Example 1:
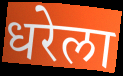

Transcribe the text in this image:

धरेला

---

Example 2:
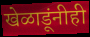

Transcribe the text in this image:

खेळाडूंनीही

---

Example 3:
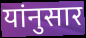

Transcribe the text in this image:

यांनुसार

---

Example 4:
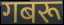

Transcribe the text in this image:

गबरू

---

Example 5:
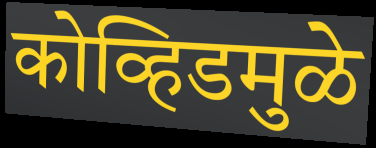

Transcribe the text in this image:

कोव्हिडमुळे